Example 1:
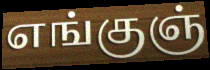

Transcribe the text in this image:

எங்குஞ்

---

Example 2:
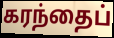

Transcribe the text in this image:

கரந்தைப்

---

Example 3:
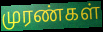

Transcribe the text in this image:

முரண்கள்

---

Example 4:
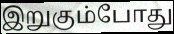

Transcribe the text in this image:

இறுகும்போது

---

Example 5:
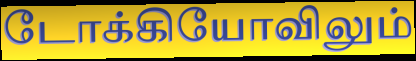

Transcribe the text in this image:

டோக்கியோவிலும்